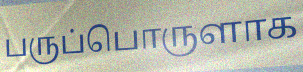
பருப்பொருளாக